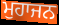
ਮੁਹਾਜਨ